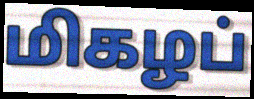
மிகழப்